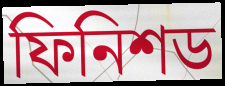
ফিনিশড